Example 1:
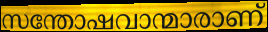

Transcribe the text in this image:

സന്തോഷവാന്മാരാണ്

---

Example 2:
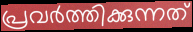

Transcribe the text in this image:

പ്രവർത്തിക്കുന്നത്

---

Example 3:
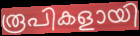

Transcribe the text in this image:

രൂപികളായി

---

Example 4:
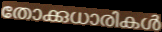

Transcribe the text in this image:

തോക്കുധാരികൾ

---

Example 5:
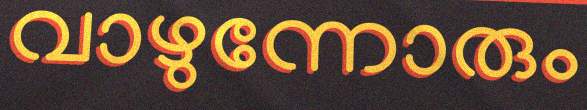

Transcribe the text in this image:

വാഴുന്നോരും